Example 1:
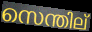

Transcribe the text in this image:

സെന്തില്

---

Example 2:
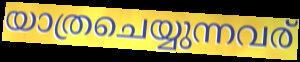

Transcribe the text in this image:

യാത്രചെയ്യുന്നവര്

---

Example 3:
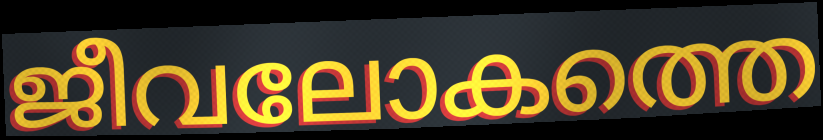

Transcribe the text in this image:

ജീവലോകത്തെ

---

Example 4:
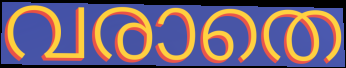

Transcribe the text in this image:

വരാതെ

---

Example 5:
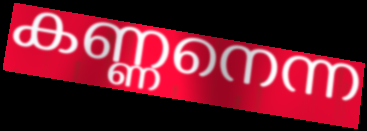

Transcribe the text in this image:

കണ്ണനെന്ന